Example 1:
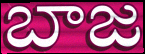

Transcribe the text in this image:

బాజ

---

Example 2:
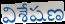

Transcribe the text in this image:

విశేషణ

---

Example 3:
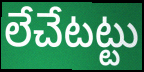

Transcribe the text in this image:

లేచేటట్టు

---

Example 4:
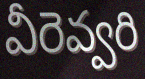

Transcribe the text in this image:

వీరెవ్వరి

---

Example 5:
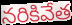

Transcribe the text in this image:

నరికివేత